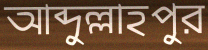
আব্দুল্লাহপুর